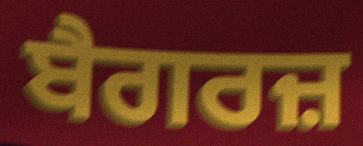
ਬੈਗਰਜ਼